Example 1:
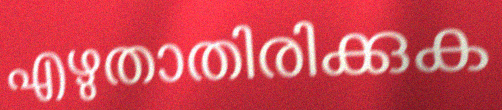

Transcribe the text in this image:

എഴുതാതിരിക്കുക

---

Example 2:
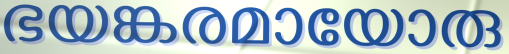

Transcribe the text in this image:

ഭയങ്കരമായോരു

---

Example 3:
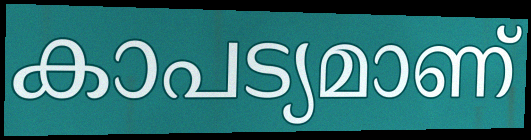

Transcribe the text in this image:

കാപട്യമാണ്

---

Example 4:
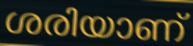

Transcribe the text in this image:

ശരിയാണ്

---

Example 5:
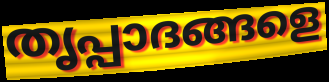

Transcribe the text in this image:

തൃപ്പാദങ്ങളെ